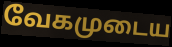
வேகமுடைய